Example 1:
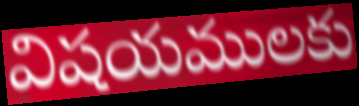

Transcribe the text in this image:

విషయములకు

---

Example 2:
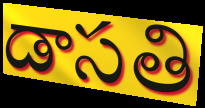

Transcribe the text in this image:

డాసతి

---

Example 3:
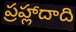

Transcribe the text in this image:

ప్రహ్లాదాది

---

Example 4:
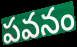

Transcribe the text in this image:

పవనం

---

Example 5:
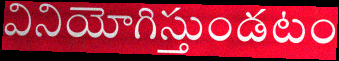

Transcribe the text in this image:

వినియోగిస్తుండటం